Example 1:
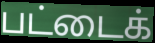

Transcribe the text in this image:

பட்டைக்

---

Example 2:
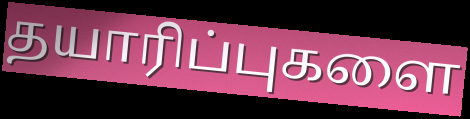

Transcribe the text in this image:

தயாரிப்புகளை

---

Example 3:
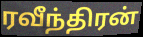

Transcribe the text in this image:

ரவீந்திரன்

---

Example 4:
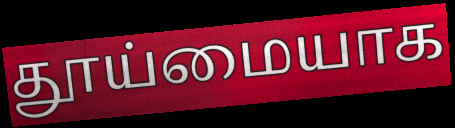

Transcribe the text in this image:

தூய்மையாக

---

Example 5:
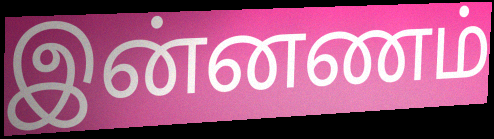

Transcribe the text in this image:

இன்னணம்